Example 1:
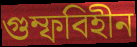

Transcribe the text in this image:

গুম্ফবিহীন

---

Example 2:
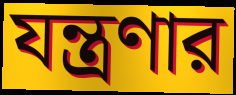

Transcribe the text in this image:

যন্ত্রণার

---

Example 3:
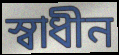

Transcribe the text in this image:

স্বাধীন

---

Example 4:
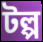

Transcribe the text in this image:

টল্প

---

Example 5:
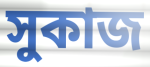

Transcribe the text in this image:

সুকাজ